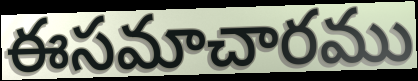
ఈసమాచారము